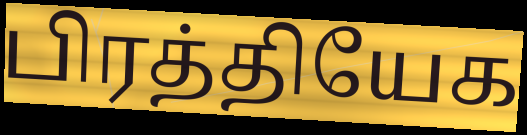
பிரத்தியேக